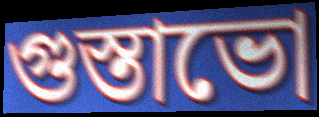
গুস্তাভো